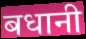
बधानी